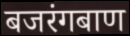
बजरंगबाण